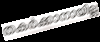
തകർക്കാനായില്ല